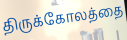
திருக்கோலத்தை